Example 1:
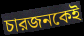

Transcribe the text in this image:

চারজনকেই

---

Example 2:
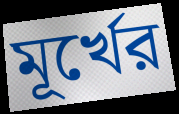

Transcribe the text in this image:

মূর্খের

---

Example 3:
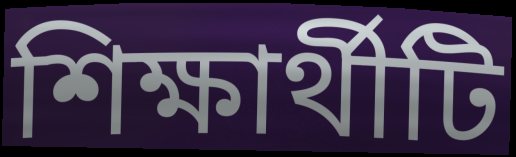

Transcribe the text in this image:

শিক্ষার্থীটি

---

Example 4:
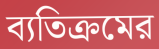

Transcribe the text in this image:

ব্যতিক্রমের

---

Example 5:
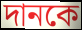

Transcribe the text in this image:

দানকে